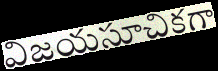
విజయసూచికగా